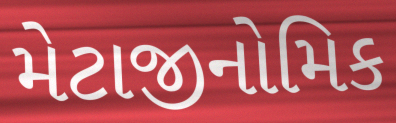
મેટાજીનોમિક